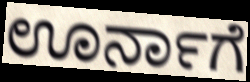
ಊರ್ನಾಗೆ